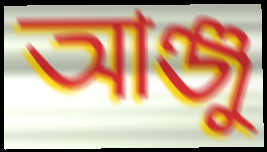
আঞ্জু